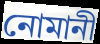
নোমানী